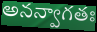
అనన్వాగతః